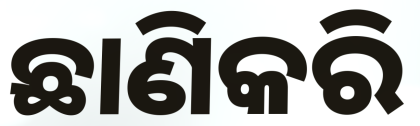
ଛାଣିକରି